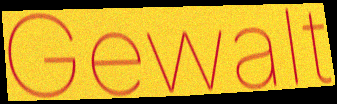
Gewalt